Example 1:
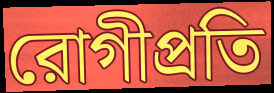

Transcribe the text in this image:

রোগীপ্রতি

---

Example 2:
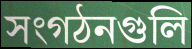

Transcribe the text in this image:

সংগঠনগুলি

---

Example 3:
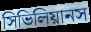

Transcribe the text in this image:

সিভিলিয়ানস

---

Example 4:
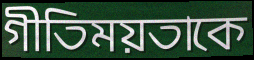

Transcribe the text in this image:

গীতিময়তাকে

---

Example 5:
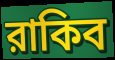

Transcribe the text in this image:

রাকিব